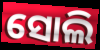
ସୋଲି